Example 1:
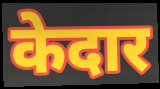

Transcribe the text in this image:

केदार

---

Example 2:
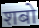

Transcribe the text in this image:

शबो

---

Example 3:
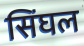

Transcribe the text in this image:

सिंघल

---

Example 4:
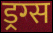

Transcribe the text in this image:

ड्रग्‍स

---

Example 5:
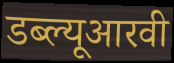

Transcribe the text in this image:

डब्ल्यूआरवी